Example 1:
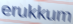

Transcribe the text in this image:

erukkum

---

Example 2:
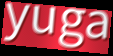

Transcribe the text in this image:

yuga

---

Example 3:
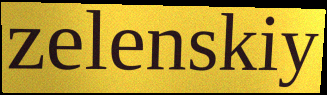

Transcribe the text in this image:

zelenskiy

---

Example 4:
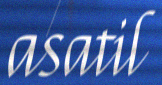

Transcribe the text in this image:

asatil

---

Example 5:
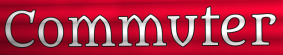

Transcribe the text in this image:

Commuter